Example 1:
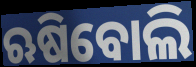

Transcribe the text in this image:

ଋଷିବୋଲି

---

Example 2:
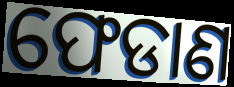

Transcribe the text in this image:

ଫେଡାଣ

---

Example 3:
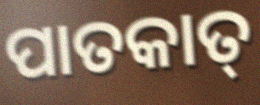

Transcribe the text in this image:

ପାତକାତ୍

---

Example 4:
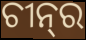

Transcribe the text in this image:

ଚୀନ୍‌ର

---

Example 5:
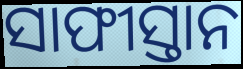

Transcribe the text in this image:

ସାଫୀସ୍ତାନ